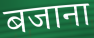
बजाना